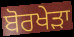
ਬੋਰਖੇੜਾ